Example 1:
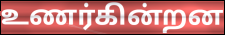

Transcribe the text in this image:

உணர்கின்றன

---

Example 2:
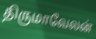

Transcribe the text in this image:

திருமாவேலன்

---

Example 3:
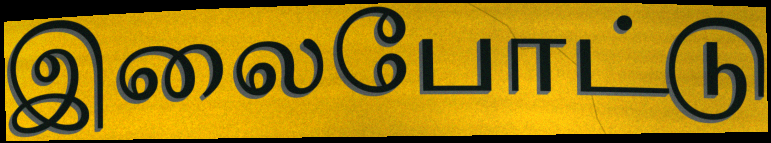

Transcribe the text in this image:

இலைபோட்டு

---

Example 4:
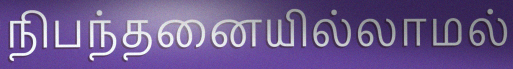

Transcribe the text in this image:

நிபந்தனையில்லாமல்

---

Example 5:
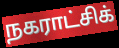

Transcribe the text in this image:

நகராட்சிக்